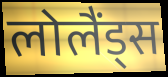
लोलैंड्स